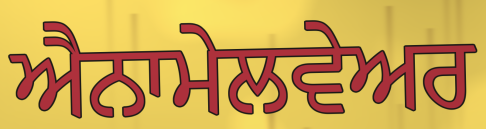
ਐਨਾਮੇਲਵੇਅਰ